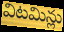
విటమిన్లు